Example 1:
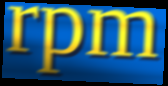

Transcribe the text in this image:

rpm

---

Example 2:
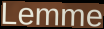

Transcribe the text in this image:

Lemme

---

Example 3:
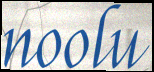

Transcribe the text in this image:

noolu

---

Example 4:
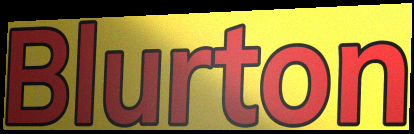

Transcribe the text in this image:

Blurton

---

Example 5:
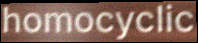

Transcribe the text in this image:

homocyclic